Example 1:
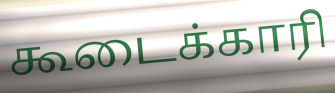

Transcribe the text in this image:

கூடைக்காரி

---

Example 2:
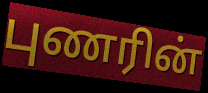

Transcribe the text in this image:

புணரின்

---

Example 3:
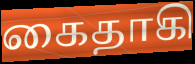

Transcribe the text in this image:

கைதாகி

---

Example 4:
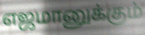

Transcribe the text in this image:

எஜமானுக்கும்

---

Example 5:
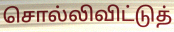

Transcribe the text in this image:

சொல்லிவிட்டுத்